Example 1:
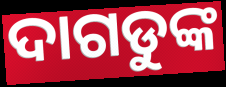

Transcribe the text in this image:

ଦାଗଡୁଙ୍କ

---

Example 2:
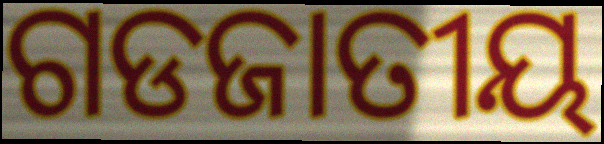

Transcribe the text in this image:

ଗଡଜାତୀୟ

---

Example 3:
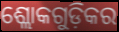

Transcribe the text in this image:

ଶ୍ଲୋକଗୁଡ଼ିକର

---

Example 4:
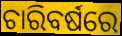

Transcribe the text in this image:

ଚାରିବର୍ଷରେ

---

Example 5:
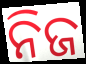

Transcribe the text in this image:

ନିଜ